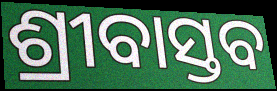
ଶ୍ରୀବାସ୍ତବ